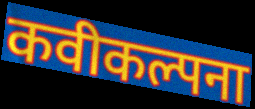
कवीकल्पना